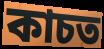
কাচত